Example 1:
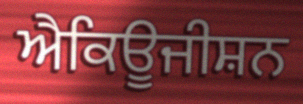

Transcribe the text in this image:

ਐਕਿਊਜੀਸ਼ਨ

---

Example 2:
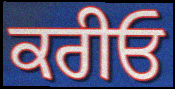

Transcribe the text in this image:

ਕਰੀਓ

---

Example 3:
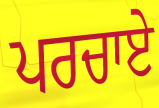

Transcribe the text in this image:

ਪਰਚਾਏ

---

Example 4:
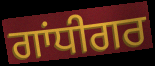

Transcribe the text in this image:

ਗਾਂਧੀਗਰ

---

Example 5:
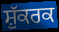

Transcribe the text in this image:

ਸ਼ੁੱਕਰਕ